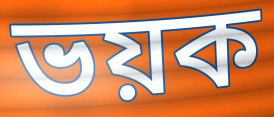
ভয়ক